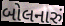
બોલનારું